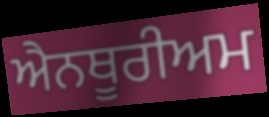
ਐਨਥੂਰੀਅਮ